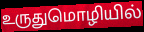
உருதுமொழியில்